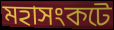
মহাসংকটে